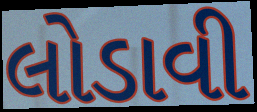
લોડાવી